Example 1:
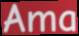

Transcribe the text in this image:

Ama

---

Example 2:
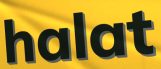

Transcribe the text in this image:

halat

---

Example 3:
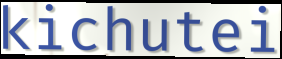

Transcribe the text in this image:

kichutei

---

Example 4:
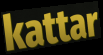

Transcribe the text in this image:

kattar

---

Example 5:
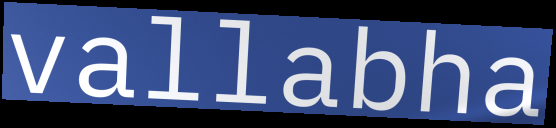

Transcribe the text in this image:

vallabha